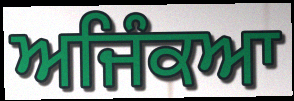
ਅਜਿੰਕਆ